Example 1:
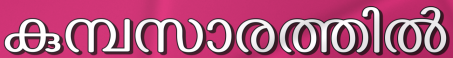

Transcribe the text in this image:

കുമ്പസാരത്തിൽ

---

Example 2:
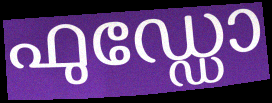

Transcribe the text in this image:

ഫുഡ്ഡോ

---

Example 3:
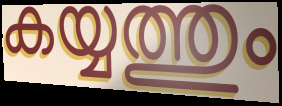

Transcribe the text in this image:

കയ്യത്തും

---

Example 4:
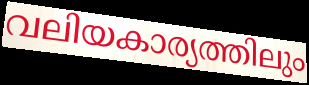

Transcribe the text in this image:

വലിയകാര്യത്തിലും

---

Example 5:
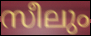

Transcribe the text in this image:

സീലും